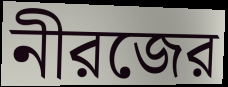
নীরজের